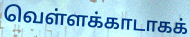
வெள்ளக்காடாகக்